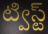
ట్విస్ట్